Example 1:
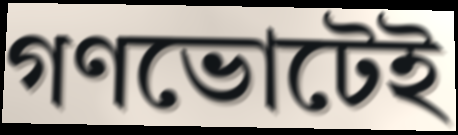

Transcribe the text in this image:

গণভোটেই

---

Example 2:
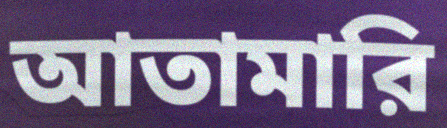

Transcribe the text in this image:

আতামারি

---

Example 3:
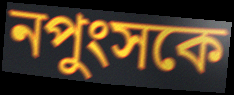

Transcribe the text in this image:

নপুংসকে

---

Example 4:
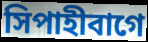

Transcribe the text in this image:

সিপাহীবাগে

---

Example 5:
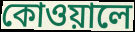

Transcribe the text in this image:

কোওয়ালে